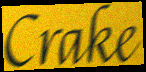
Crake